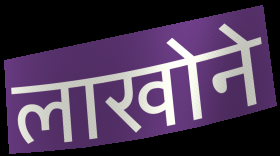
लाखोने